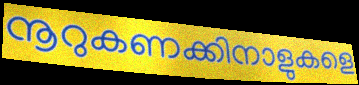
നൂറുകണക്കിനാളുകളെ